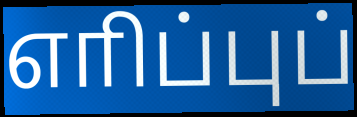
எரிப்புப்